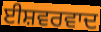
ਈਸ਼ਵਰਵਾਦ